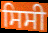
ਸਿਸੀ